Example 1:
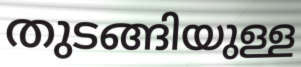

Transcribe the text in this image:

തുടങ്ങിയുള്ള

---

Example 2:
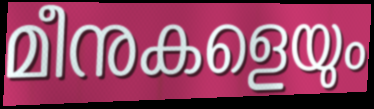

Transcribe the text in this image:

മീനുകളെയും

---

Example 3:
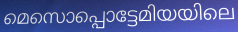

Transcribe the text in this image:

മെസൊപ്പൊട്ടേമിയയിലെ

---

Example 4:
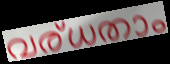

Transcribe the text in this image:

വര്ധതാം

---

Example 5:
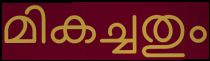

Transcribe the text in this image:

മികച്ചതും